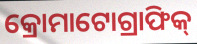
କ୍ରୋମାଟୋଗ୍ରାଫିକ୍